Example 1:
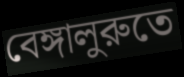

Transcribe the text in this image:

বেঙ্গালুরুতে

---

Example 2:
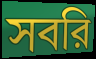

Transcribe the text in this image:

সবরি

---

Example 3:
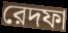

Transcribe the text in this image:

রেদফা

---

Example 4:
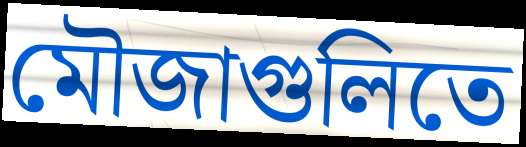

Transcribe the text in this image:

মৌজাগুলিতে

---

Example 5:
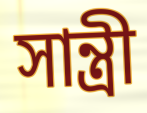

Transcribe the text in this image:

সান্ত্রী